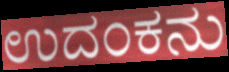
ಉದಂಕನು